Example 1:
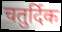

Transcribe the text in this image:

चतुर्दिक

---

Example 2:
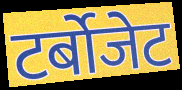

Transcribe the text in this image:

टर्बोजेट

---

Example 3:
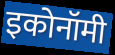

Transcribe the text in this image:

इकोनॉमी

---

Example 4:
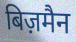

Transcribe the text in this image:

बिज़मैन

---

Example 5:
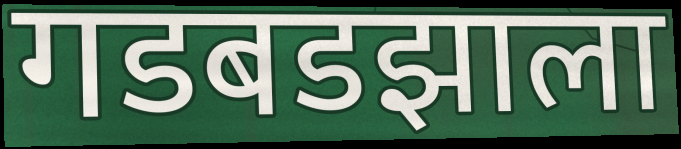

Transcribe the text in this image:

गडबडझाला